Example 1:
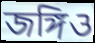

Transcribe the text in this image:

জঙ্গিও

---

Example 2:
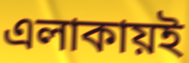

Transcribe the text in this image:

এলাকায়ই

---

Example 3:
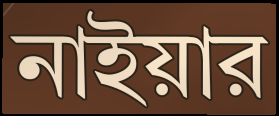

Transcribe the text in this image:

নাইয়ার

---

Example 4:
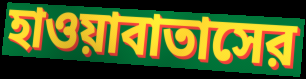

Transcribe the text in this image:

হাওয়াবাতাসের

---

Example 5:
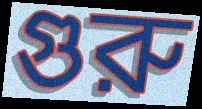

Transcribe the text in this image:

গুরু